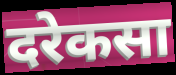
दरेकसा